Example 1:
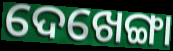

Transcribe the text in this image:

ଦେଖେଙ୍ଗା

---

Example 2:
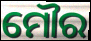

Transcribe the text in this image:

ମୌର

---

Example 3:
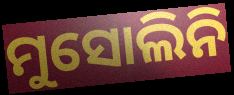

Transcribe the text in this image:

ମୁସୋଲିନି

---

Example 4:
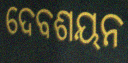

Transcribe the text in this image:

ଦେବଶୟନ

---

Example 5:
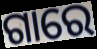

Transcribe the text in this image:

ଗାରେ